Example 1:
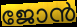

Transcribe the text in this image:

ജോൻ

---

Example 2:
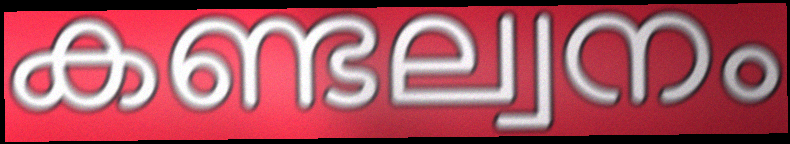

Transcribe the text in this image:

കണ്ടല്വനം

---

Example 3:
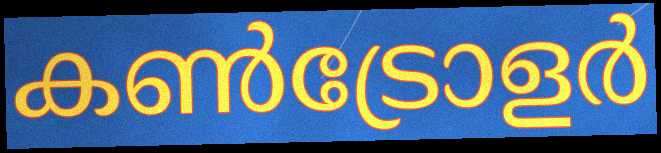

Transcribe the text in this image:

കൺട്രോളർ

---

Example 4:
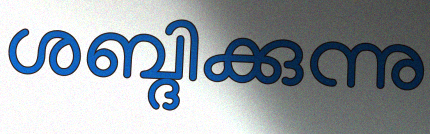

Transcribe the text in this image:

ശബ്ദിക്കുന്നു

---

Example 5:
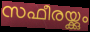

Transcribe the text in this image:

സഫീരയ്ക്കും